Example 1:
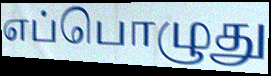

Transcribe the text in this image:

எப்பொழுது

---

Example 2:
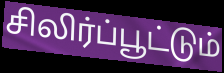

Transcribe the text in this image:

சிலிர்ப்பூட்டும்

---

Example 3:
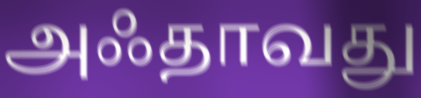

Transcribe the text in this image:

அஃதாவது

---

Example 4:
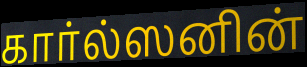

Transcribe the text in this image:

கார்ல்ஸனின்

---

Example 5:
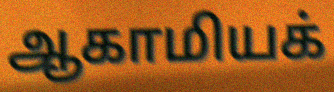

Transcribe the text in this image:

ஆகாமியக்